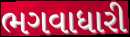
ભગવાધારી